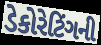
ડેકોરેટિંગની